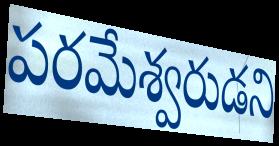
పరమేశ్వరుడని